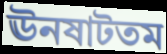
ঊনষাটতম